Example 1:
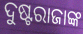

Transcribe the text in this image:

ଦୁଷ୍ଟରାଜାଙ୍କ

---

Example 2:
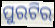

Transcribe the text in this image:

ପୁରଟିର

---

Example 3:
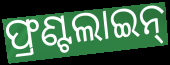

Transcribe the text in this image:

ଫ୍ରଣ୍ଟଲାଇନ୍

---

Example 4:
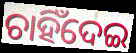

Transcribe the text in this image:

ଚାହିଁଦେଇ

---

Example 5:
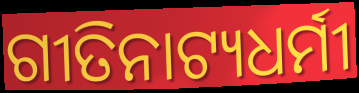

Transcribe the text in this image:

ଗୀତିନାଟ୍ୟଧର୍ମୀ